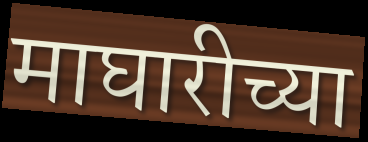
माघारीच्या